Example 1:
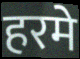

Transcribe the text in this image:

हरमे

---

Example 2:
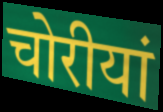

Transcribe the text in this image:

चोरीयां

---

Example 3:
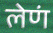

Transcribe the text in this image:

लेणं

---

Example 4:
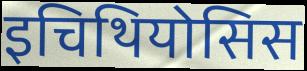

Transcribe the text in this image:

इचिथियोसिस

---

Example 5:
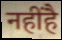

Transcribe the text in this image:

नहींहै